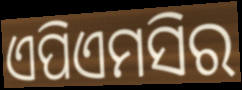
ଏପିଏମସିର